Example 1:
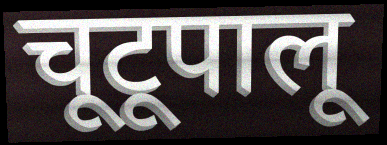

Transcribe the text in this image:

चूटूपालू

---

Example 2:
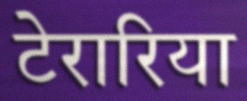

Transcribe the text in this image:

टेरारिया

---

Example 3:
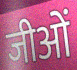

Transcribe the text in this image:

जीओं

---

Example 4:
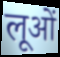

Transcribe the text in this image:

लूओं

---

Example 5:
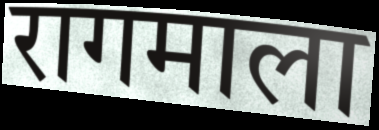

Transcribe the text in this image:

रागमाला